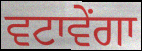
ਵਟਾਵੇਂਗਾ